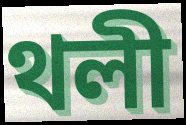
থলী